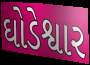
ઘોડેશ્વાર